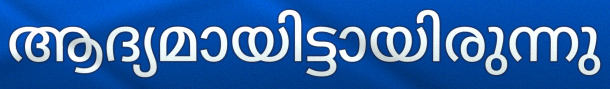
ആദ്യമായിട്ടായിരുന്നു